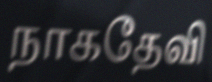
நாகதேவி